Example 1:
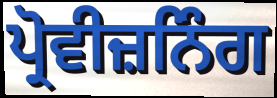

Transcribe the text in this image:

ਪ੍ਰੋਵੀਜ਼ਨਿੰਗ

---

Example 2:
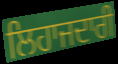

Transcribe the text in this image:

ਲਿਹਾਜਦਾਰੀ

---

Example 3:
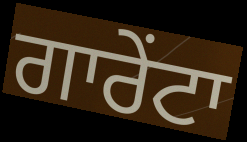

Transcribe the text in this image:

ਗਾਰੇਂਟਾ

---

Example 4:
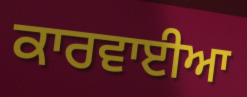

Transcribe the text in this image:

ਕਾਰਵਾਈਆ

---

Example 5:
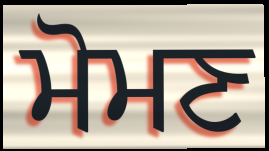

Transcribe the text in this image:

ਮੋਮਣ